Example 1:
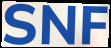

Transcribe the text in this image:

SNF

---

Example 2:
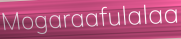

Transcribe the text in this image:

Mogaraafulalaa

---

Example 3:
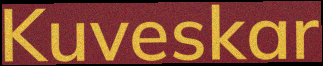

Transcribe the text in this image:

Kuveskar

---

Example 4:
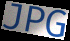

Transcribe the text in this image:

JPG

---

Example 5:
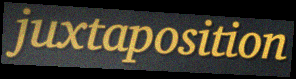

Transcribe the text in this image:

juxtaposition